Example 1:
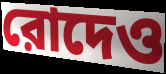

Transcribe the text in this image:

রোদেও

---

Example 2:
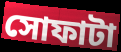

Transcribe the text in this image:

সোফাটা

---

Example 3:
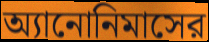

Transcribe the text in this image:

অ্যানোনিমাসের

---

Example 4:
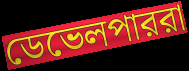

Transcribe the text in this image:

ডেভেলপাররা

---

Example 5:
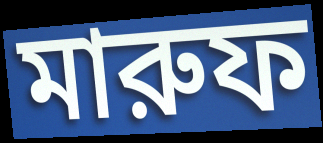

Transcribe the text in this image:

মারুফ